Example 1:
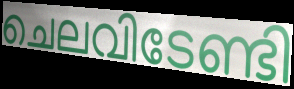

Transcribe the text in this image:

ചെലവിടേണ്ടി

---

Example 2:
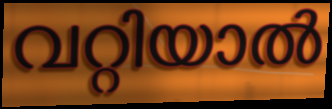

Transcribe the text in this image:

വറ്റിയാൽ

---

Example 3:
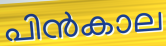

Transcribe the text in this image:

പിൻകാല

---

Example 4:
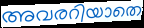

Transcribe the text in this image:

അവരറിയാതെ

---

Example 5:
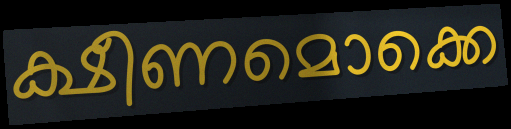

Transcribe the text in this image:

ക്ഷീണമൊക്കെ